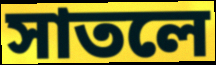
সাতলে